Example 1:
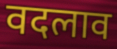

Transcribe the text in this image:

वदलाव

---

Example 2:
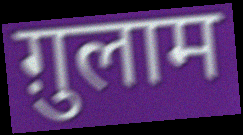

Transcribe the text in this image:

ग़ुलाम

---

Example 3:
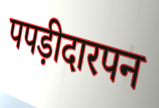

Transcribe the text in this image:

पपड़ीदारपन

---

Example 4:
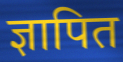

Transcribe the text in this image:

ज्ञापित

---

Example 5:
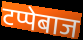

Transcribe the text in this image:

टप्पेबाज